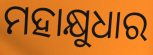
ମହାକ୍ଷୁଧାର